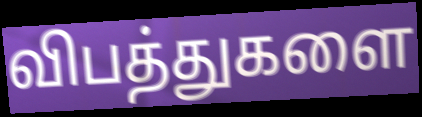
விபத்துகளை